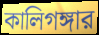
কালিগঙ্গার